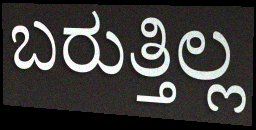
ಬರುತ್ತಿಲ್ಲ